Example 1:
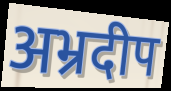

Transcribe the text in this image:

अभ्रदीप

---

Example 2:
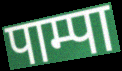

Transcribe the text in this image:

पाम्पा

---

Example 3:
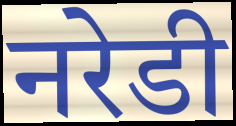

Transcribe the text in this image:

नरेडी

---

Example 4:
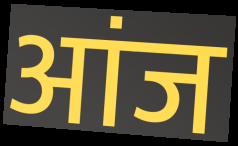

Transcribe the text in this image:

आंज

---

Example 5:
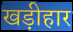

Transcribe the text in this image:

खड़ीहार